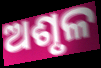
ଅଶୃଳ